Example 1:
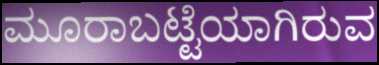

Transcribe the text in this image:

ಮೂರಾಬಟ್ಟೆಯಾಗಿರುವ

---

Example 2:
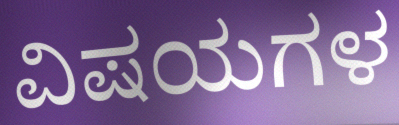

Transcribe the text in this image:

ವಿಷಯಗಳ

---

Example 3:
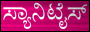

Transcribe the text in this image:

ಸ್ಯಾನಿಟೈಸ್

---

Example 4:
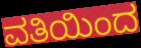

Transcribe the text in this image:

ವತಿಯಿಂದ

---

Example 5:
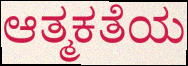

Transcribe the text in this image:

ಆತ್ಮಕತೆಯ